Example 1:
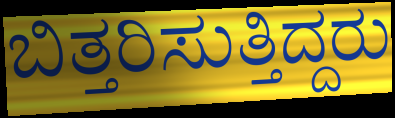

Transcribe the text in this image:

ಬಿತ್ತರಿಸುತ್ತಿದ್ದರು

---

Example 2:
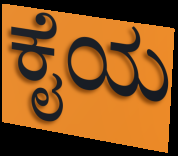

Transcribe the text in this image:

ಕೈಯ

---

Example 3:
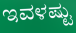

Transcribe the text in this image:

ಇವಳಷ್ಟು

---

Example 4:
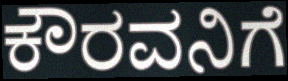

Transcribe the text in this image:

ಕೌರವನಿಗೆ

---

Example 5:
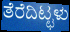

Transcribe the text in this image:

ತೆರೆದಿಟ್ಟಳು